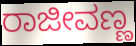
ರಾಜೀವಣ್ಣ